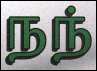
நந்